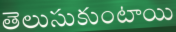
తెలుసుకుంటాయి